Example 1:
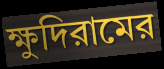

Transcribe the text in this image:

ক্ষুদিরামের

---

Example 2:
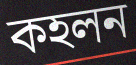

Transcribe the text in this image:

কহলন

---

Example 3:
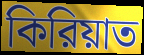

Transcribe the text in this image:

কিরিয়াত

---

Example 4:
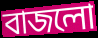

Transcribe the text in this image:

বাজলো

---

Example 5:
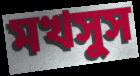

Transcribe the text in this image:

মখসুস